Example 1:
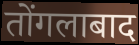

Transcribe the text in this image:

तोंगलाबाद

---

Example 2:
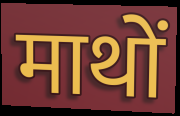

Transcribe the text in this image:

माथों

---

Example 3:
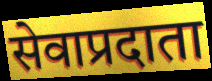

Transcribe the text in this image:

सेवाप्रदाता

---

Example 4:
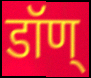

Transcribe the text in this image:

डॉण्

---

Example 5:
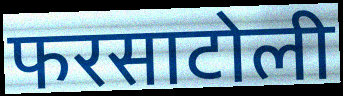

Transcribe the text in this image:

फरसाटोली